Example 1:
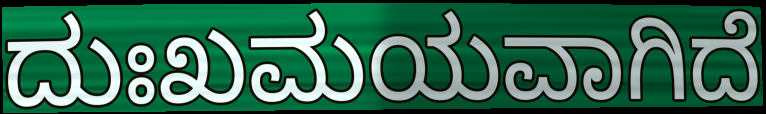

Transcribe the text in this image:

ದುಃಖಮಯವಾಗಿದೆ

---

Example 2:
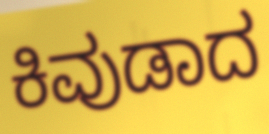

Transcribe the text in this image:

ಕಿವುಡಾದ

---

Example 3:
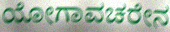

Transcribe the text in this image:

ಯೋಗಾವಚರೇನ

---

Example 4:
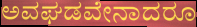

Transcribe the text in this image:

ಅವಘಡವೇನಾದರೂ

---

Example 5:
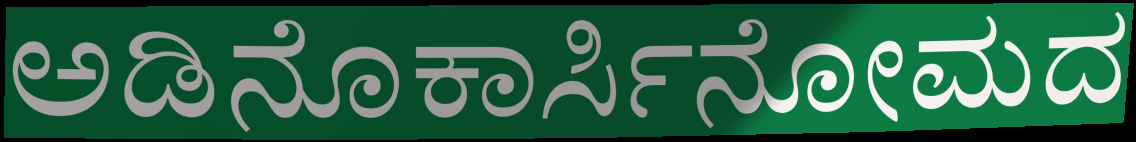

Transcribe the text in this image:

ಅಡಿನೊಕಾರ್ಸಿನೋಮದ